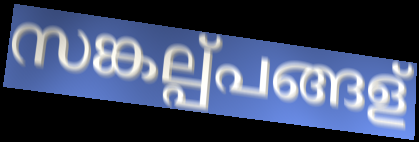
സങ്കല്പ്പങ്ങള്